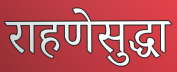
राहणेसुद्धा